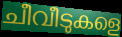
ചീവീടുകളെ